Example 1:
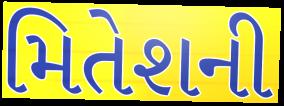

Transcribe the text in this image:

મિતેશની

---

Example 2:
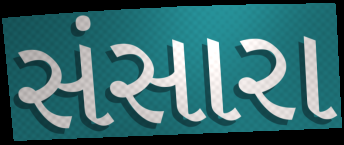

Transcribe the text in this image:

સંસારા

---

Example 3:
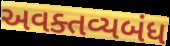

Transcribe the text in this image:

અવક્તવ્યબંધ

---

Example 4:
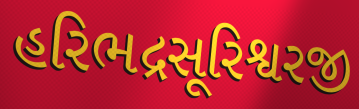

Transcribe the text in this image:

હરિભદ્રસૂરિશ્વરજી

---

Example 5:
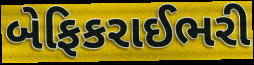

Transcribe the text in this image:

બેફિકરાઈભરી